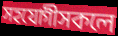
সহযোগীসকলে